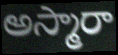
అస్మారా